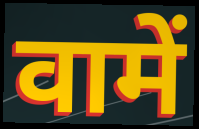
वामें